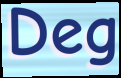
Deg